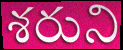
శరుని